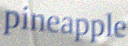
pineapple